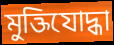
মুক্তিযোদ্ধা